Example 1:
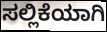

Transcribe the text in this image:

ಸಲ್ಲಿಕೆಯಾಗಿ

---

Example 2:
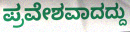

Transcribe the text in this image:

ಪ್ರವೇಶವಾದದ್ದು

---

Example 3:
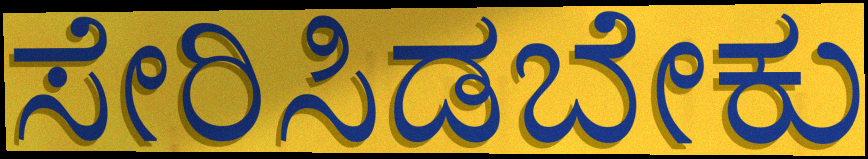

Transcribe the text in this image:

ಸೇರಿಸಿಡಬೇಕು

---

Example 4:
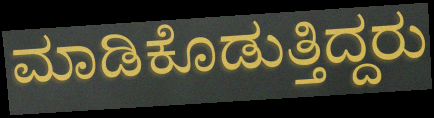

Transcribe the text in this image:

ಮಾಡಿಕೊಡುತ್ತಿದ್ದರು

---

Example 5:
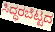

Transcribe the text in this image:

ಸಿದ್ಧರಬೆಟ್ಟದ